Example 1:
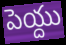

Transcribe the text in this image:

పెయ్దు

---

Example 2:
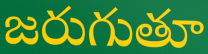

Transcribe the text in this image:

జరుగుతూ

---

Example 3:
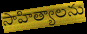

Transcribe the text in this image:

సాహిత్యాలను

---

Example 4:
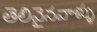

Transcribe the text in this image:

తెలివైనవాళ్ళు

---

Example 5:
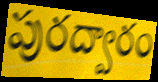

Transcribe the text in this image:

పురద్వారం